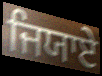
ਜਿਯਾਏ